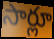
సార్లూ